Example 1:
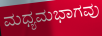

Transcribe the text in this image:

ಮಧ್ಯಮಭಾಗವು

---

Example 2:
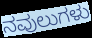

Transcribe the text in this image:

ನವುಲುಗಳು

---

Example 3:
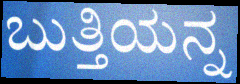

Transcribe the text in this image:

ಬುತ್ತಿಯನ್ನ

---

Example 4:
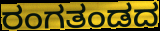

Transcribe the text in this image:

ರಂಗತಂಡದ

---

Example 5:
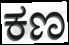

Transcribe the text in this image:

ಕಣ